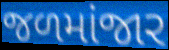
જળમાંજાર